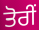
ਤੋਰੀਂ